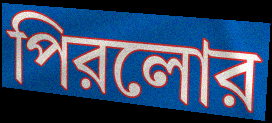
পিরলোর